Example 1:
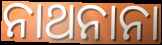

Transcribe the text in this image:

ନାଥନାନା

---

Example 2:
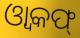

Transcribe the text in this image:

ଓ୍ଵାକଫ୍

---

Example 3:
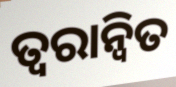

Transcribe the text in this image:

ତ୍ବରାନ୍ବିତ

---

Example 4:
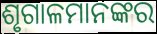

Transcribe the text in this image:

ଶୃଗାଳମାନଙ୍କର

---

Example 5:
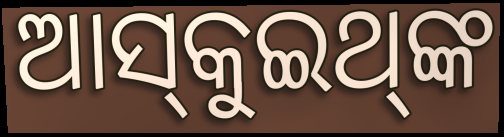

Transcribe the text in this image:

ଆସ୍‌କୁଇଥ୍‌ଙ୍କ